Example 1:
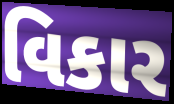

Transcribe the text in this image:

વિકાર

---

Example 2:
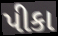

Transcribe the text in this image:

પીકા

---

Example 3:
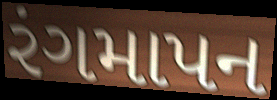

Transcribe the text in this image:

રંગમાપન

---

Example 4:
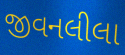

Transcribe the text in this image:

જીવનલીલા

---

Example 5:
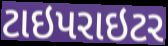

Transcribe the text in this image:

ટાઇપરાઇટર